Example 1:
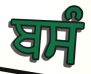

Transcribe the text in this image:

ਬਸੰ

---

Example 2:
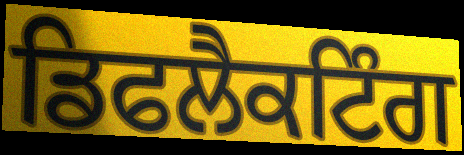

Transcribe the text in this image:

ਡਿਫਲੈਕਟਿੰਗ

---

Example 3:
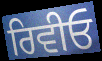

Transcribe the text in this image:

ਰਿਵੀਓ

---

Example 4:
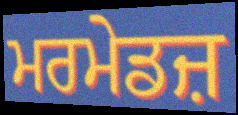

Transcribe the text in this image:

ਮਰਮੇਡਜ਼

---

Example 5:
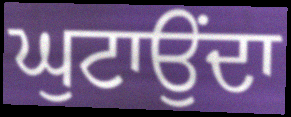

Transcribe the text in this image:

ਘੁਟਾਉਂਦਾ